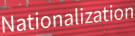
Nationalization